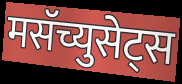
मसॅच्युसेट्स